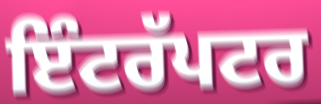
ਇੰਟਰੱਪਟਰ